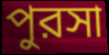
পুরসা